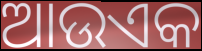
ଆଉଏକ